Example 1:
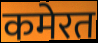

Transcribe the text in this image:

कमेरत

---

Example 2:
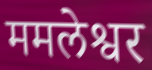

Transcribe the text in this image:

ममलेश्वर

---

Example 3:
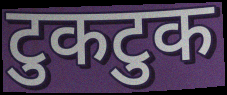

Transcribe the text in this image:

टुकटुक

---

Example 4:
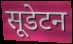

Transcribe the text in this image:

सूडेटन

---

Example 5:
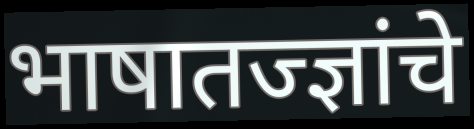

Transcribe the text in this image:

भाषातज्ज्ञांचे